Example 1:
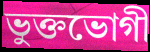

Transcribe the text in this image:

ভুক্তভোগী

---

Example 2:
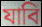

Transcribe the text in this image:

যাবি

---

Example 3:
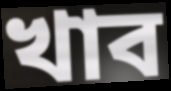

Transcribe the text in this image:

খাব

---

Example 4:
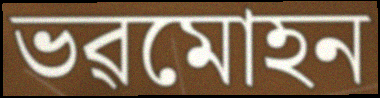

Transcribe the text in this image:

ভৱমোহন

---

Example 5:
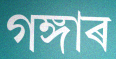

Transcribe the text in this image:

গঙ্গাৰ